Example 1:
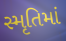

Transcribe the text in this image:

સ્મૃતિમાં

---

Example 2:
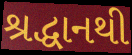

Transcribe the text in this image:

શ્રદ્ધાનથી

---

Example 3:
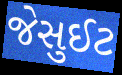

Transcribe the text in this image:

જેસુઈટ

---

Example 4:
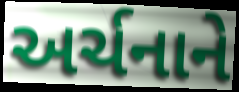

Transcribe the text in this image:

અર્ચનાને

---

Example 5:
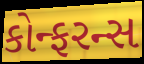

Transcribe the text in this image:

કોન્ફરન્સ